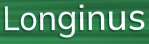
Longinus